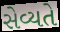
સેવ્યતે